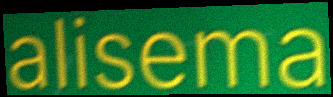
alisema